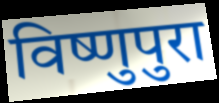
विष्णुपुरा